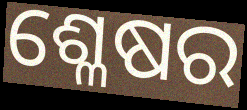
ଶ୍ଳେଷର